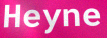
Heyne